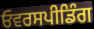
ਓਵਰਸਪੀਡਿੰਗ